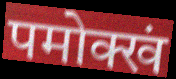
पमोक्खं